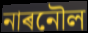
নাৰনৌল